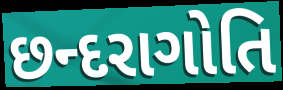
છન્દરાગોતિ